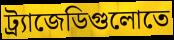
ট্র্যাজেডিগুলোতে